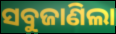
ସବୁଜାଣିଲା